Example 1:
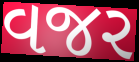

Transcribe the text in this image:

વજર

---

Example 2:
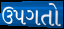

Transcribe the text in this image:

ઉપગતો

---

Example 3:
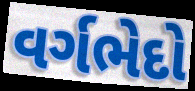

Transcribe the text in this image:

વર્ગભેદો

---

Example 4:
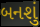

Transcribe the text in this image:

બનશું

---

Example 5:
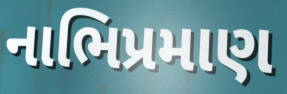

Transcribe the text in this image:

નાભિપ્રમાણ